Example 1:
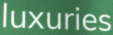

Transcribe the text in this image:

luxuries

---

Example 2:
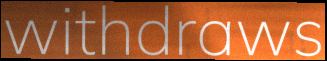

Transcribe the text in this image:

withdraws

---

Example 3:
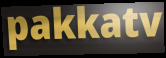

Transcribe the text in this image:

pakkatv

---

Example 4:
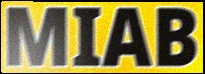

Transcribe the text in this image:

MIAB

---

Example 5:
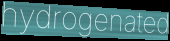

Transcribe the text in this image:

hydrogenated